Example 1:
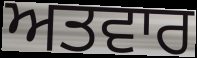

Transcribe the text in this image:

ਅਤਵਾਰ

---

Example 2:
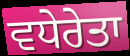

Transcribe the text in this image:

ਵਧੇਰੇਤਾ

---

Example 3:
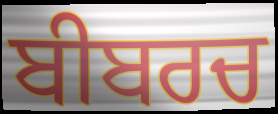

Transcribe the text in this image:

ਬੀਬਰਚ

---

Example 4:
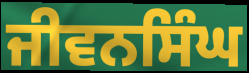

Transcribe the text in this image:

ਜੀਵਨਸਿੰਘ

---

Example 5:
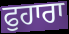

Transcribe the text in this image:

ਫੁਹਾਰਾ